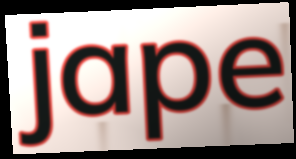
jape